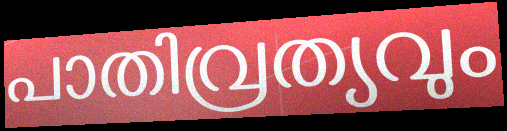
പാതിവ്രത്യവും